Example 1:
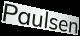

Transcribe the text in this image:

Paulsen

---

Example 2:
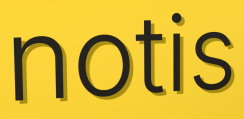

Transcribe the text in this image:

notis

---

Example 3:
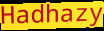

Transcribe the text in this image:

Hadhazy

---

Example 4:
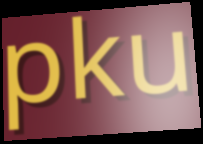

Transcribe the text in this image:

pku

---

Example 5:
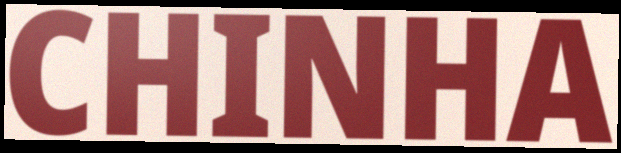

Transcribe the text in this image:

CHINHA